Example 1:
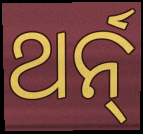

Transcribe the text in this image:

ଥର୍ନ୍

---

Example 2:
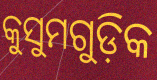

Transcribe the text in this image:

କୁସୁମଗୁଡ଼ିକ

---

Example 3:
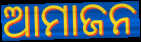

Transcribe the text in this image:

ଆମାଜନ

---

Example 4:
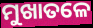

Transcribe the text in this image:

ମୁଖାତଳେ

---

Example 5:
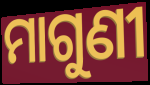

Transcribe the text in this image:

ମାଗୁଣୀ